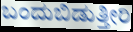
ಬಂದುಬಿಡುತ್ತೀರಿ